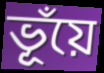
ভূঁয়ে